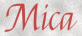
Mica